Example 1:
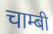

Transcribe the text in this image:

चाम्बी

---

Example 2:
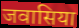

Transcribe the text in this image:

जवासिया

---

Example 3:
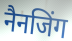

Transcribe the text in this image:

नैनजिंग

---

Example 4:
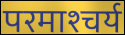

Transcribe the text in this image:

परमाश्चर्य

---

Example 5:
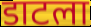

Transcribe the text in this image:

डाटला